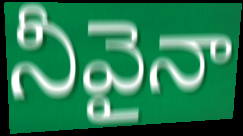
నీవైనా